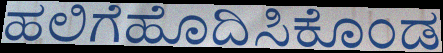
ಹಲಿಗೆಹೊದಿಸಿಕೊಂಡ